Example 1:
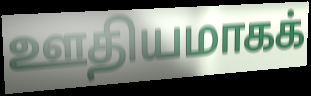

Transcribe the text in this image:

ஊதியமாகக்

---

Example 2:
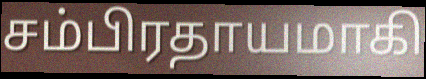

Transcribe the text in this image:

சம்பிரதாயமாகி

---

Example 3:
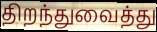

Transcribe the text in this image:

திறந்துவைத்து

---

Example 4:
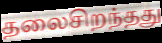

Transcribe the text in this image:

தலைசிறந்தது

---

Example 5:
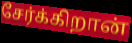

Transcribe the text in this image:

சேர்க்கிறான்